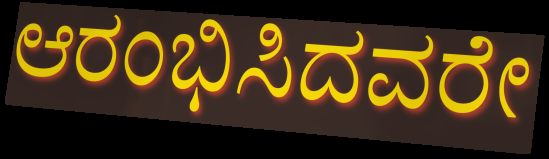
ಆರಂಭಿಸಿದವರೇ